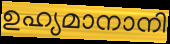
ഉഹ്യമാനാനി